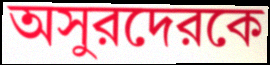
অসুরদেরকে